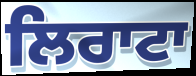
ਲਿਰਾਟਾ